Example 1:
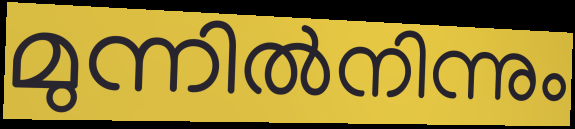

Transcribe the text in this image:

മുന്നിൽനിന്നും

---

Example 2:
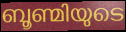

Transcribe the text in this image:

ബൂണ്മിയുടെ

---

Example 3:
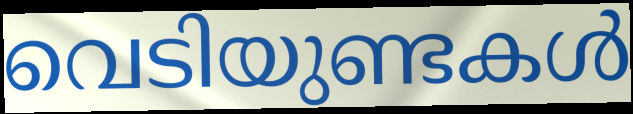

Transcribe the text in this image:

വെടിയുണ്ടകൾ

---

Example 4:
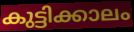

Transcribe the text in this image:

കുട്ടിക്കാലം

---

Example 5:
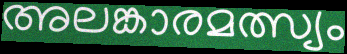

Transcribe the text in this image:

അലങ്കാരമത്സ്യം